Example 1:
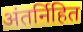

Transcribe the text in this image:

अंतर्निहित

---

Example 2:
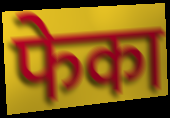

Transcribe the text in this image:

फेका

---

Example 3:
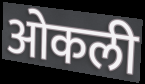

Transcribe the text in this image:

ओकली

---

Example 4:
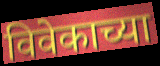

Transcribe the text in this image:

विवेकाच्या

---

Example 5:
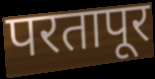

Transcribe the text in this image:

परतापूर